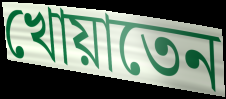
খোয়াতেন